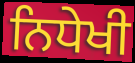
ਨਿਧੇਖੀ